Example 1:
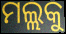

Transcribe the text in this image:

ମଲ୍ଲକୁ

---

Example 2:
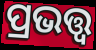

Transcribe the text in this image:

ପ୍ରଭତ୍ତ୍ଵ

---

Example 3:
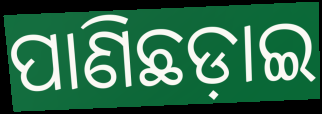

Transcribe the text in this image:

ପାଣିଛଡ଼ାଇ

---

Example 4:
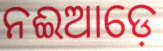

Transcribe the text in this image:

ନଈଆଡ଼େ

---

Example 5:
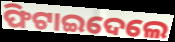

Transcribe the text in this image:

ଫିଟାଇଦେଲେ